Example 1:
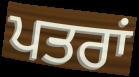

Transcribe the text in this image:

ਪਤਰਾਂ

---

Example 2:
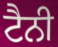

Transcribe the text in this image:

ਟੈਨੀ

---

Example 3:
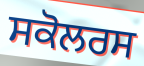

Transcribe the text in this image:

ਸਕੋਲਰਸ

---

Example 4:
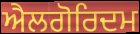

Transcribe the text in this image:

ਐਲਗੋਰਿਦਮ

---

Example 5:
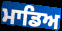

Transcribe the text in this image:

ਮਾਡਿਅ